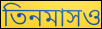
তিনমাসও